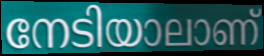
നേടിയാലാണ്